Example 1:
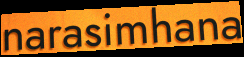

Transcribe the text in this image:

narasimhana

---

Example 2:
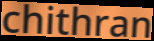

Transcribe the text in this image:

chithran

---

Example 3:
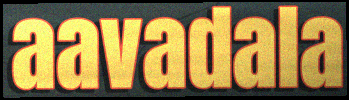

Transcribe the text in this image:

aavadala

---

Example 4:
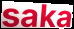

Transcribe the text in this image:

saka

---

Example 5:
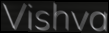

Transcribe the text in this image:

Vishva